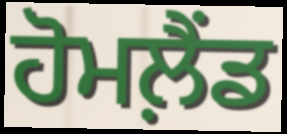
ਹੋਮਲ਼ੈਂਡ